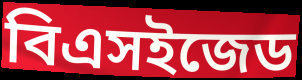
বিএসইজেড